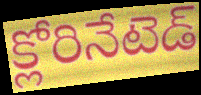
క్లోరినేటెడ్